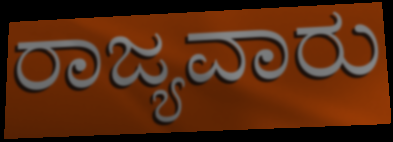
ರಾಜ್ಯವಾರು